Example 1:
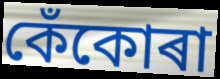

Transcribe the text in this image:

কেঁকোৰা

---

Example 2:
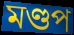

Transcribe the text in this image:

মণ্ডপ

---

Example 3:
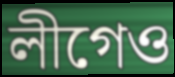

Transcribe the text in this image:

লীগেও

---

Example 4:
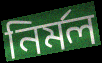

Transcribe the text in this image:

নিৰ্মল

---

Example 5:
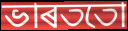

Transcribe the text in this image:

ভাৰততো